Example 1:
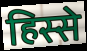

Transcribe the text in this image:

हिस्से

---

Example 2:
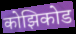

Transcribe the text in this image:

कोझिकोड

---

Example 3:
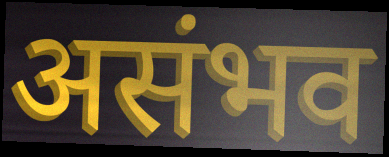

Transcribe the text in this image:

असंभव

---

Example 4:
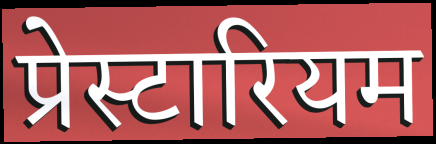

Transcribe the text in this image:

प्रेस्टारियम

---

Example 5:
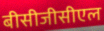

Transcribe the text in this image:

बीसीजीसीएल